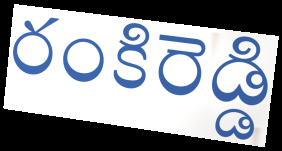
రంకిరెడ్డి